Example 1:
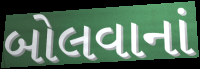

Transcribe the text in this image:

બોલવાનાં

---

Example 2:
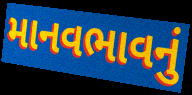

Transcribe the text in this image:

માનવભાવનું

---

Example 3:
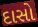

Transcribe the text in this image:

દાસો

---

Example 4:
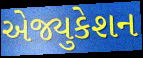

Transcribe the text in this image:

એજ્યુકેશન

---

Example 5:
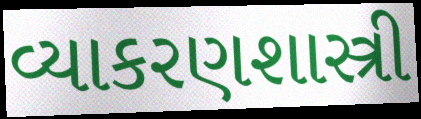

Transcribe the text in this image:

વ્યાકરણશાસ્ત્રી